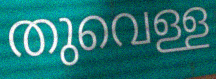
തുവെള്ള